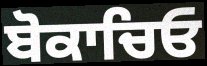
ਬੋਕਾਚਿਓ